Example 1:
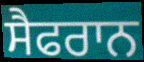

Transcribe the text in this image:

ਸੈਫਰਾਨ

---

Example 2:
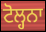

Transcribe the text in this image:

ਟੋਲ੍ਹਨਾ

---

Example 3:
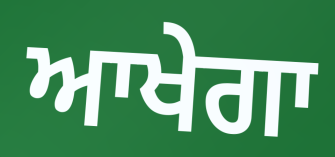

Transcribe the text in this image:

ਆਖੇਗਾ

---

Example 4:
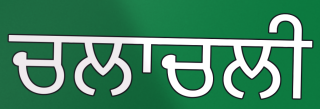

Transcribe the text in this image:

ਚਲਾਚਲੀ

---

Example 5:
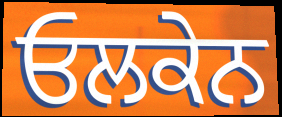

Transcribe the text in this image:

ਓਲਕੇਨ